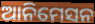
ଆନିମେସନ